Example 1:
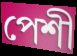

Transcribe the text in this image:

পেশী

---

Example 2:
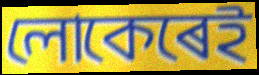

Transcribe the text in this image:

লোকেৰেই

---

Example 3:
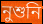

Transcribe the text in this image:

নুশুনি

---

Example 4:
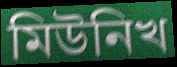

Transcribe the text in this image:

মিউনিখ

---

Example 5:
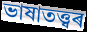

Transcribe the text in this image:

ভাষাতত্ত্বৰ